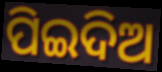
ପିଇଦିଅ